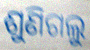
ଶୁଣିଗଲୁ